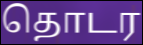
தொடர